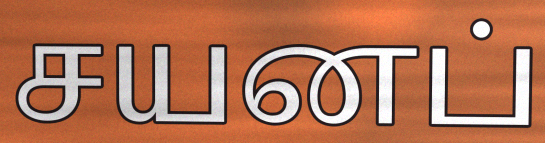
சயனப்